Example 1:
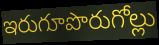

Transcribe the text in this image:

ఇరుగూపొరుగోల్లు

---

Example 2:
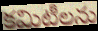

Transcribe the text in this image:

కమిటీలను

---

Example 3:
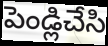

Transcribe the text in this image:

పెండ్లిచేసి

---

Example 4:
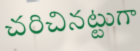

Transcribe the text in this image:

చరిచినట్టుగా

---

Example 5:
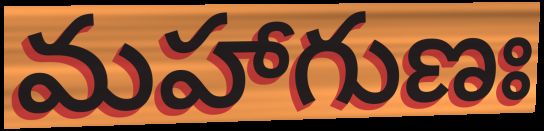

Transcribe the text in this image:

మహాగుణః